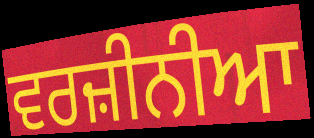
ਵਰਜ਼ੀਨੀਆ